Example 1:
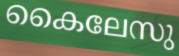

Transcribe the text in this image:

കൈലേസു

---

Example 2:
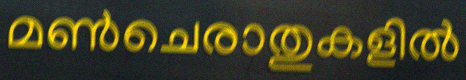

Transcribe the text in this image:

മൺചെരാതുകളിൽ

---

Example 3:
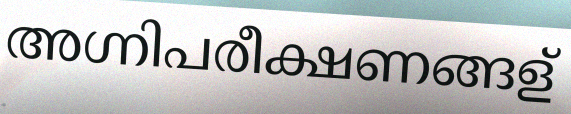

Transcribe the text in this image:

അഗ്നിപരീക്ഷണങ്ങള്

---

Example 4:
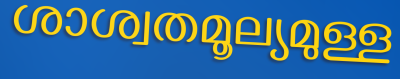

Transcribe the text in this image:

ശാശ്വതമൂല്യമുള്ള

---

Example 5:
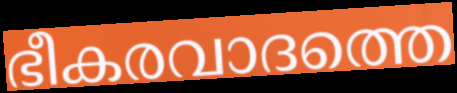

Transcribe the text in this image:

ഭീകരവാദത്തെ